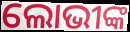
ଲୋଭୀଙ୍କ